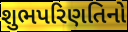
શુભપરિણતિનો